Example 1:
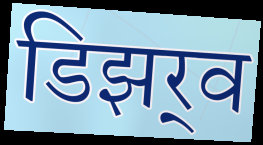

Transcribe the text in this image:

डिझर्व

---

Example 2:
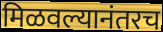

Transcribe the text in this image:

मिळवल्यानंतरच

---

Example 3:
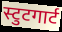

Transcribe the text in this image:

स्टुटगार्ट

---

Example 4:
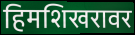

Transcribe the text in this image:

हिमशिखरावर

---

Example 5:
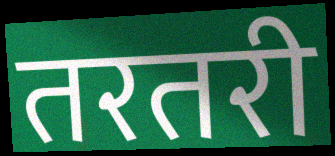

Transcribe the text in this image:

तरतरी